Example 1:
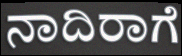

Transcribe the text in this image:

ನಾದಿರಾಗೆ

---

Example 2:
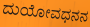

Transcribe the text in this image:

ದುಯೋವಧನನ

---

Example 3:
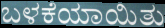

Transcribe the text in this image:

ಬಳಕೆಯಾಯಿತು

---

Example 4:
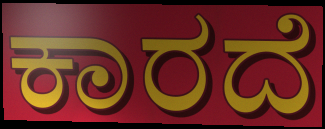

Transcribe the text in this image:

ಕಾರದೆ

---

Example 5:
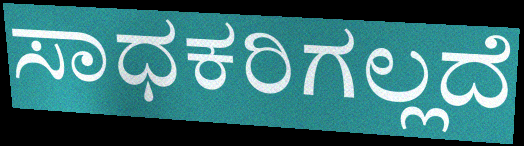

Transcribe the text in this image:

ಸಾಧಕರಿಗಲ್ಲದೆ